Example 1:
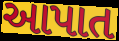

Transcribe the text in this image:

આપાત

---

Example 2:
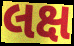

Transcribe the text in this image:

લક્ષ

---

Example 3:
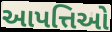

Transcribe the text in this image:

આપત્તિઓ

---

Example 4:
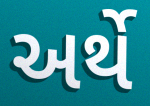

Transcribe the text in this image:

અર્થે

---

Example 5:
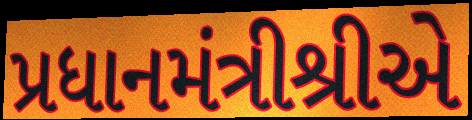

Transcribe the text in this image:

પ્રધાનમંત્રીશ્રીએ